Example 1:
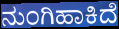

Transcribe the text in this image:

ನುಂಗಿಹಾಕಿದೆ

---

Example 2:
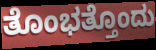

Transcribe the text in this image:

ತೊಂಭತ್ತೊಂದು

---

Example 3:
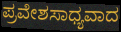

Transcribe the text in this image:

ಪ್ರವೇಶಸಾಧ್ಯವಾದ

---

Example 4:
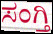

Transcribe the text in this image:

ಸಂಗ್ತಿ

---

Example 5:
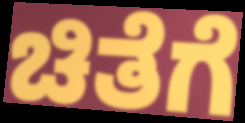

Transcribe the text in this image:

ಚಿತೆಗೆ